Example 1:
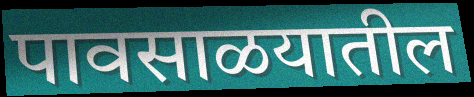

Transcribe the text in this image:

पावसाळयातील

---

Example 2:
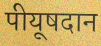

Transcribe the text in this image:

पीयूषदान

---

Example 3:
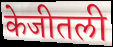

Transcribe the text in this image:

केजीतली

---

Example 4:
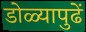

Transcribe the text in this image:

डोळ्यापुढें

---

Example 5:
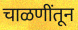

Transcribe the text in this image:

चाळणींतून